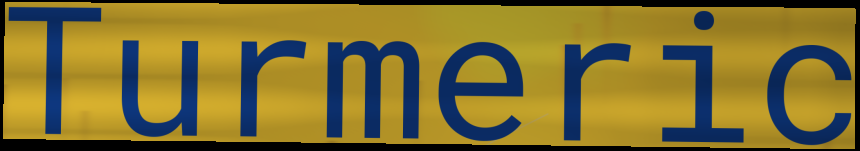
Turmeric